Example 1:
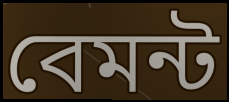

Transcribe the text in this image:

বেমন্ট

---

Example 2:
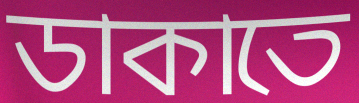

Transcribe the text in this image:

ডাকাতে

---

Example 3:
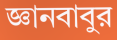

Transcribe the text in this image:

জ্ঞানবাবুর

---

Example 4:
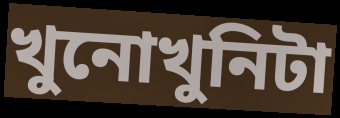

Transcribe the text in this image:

খুনোখুনিটা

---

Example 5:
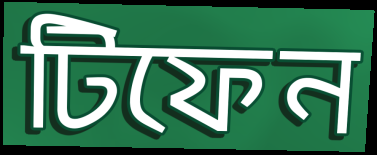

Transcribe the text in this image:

টিফেন